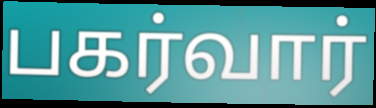
பகர்வார்